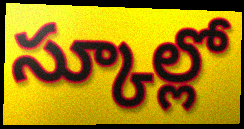
స్కూల్లో